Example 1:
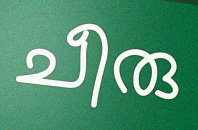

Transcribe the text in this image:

ചീരു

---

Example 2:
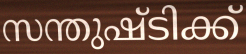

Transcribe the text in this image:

സന്തുഷ്ടിക്ക്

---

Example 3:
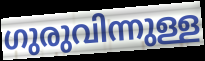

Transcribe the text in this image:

ഗുരുവിന്നുള്ള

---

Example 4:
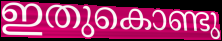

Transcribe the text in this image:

ഇതുകൊണ്ടു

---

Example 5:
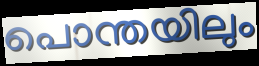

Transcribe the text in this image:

പൊന്തയിലും